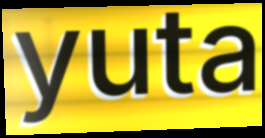
yuta